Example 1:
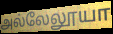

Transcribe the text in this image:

அல்லேலூயா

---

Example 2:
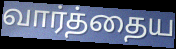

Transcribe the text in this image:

வார்த்தைய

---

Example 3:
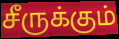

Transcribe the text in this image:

சீருக்கும்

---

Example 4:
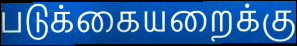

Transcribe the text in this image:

படுக்கையறைக்கு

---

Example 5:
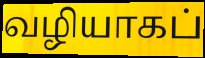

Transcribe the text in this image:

வழியாகப்